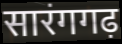
सारंगगढ़